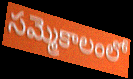
సమ్మెకాలంలో